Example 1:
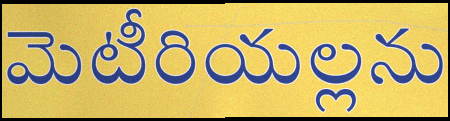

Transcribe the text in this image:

మెటీరియల్లను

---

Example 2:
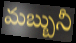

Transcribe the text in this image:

మబ్బునీ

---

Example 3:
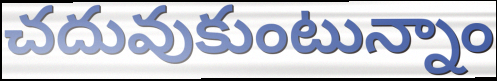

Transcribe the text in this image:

చదువుకుంటున్నాం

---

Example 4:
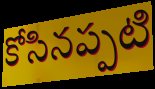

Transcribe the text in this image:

కోసినప్పటి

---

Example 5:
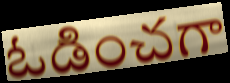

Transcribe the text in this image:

ఓడించగా